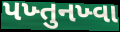
પખ્તુનખ્વા